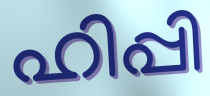
ഹിപ്പി